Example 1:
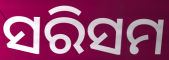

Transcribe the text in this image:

ସରିସମ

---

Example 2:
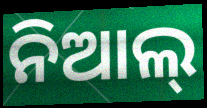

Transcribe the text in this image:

ନିଆଲ୍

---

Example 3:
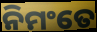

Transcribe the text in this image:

ନିମଂତେ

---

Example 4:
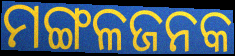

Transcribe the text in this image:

ମଙ୍ଗଳଜନକ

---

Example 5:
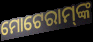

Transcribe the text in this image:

ମୋଟେରାମ୍‌ଙ୍କ